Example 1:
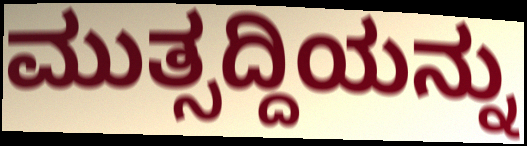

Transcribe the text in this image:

ಮುತ್ಸದ್ದಿಯನ್ನು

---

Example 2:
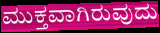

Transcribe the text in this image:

ಮುಕ್ತವಾಗಿರುವುದು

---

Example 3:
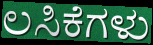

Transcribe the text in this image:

ಲಸಿಕೆಗಳು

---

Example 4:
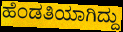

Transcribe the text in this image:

ಹೆಂಡತಿಯಾಗಿದ್ದು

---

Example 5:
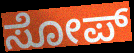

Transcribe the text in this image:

ಸೋಪ್